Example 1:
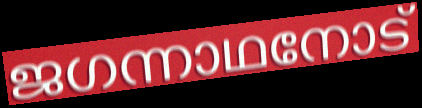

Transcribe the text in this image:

ജഗന്നാഥനോട്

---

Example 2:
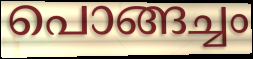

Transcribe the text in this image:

പൊങ്ങച്ചം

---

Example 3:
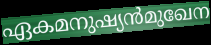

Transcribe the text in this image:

ഏകമനുഷ്യൻമുഖേന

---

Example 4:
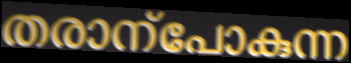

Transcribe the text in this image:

തരാന്പോകുന്ന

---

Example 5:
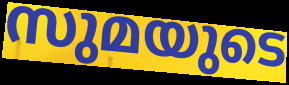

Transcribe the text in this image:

സുമയുടെ